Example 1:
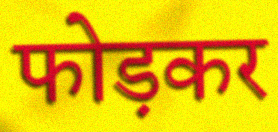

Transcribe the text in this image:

फोड़कर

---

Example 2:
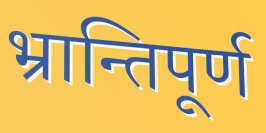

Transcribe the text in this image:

भ्रान्तिपूर्ण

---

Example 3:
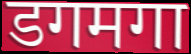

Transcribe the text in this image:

डगमगा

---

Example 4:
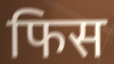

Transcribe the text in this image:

फिस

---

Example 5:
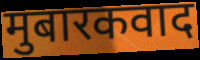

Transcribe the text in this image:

मुबारकवाद